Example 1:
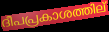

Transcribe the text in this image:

ദീപപ്രകാശത്തില്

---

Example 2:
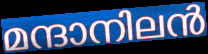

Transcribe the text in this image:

മന്ദാനിലൻ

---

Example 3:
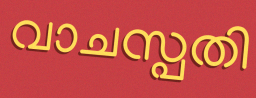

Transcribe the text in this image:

വാചസ്പതി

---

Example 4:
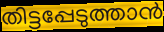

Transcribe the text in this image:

തിട്ടപ്പേടുത്താൻ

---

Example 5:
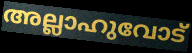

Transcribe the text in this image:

അല്ലാഹുവോട്